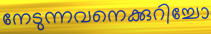
നേടുന്നവനെക്കുറിച്ചോ